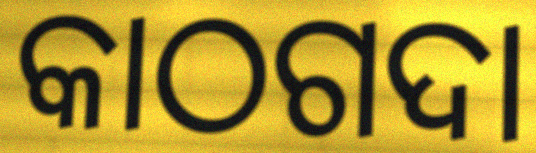
କାଠଗଦା